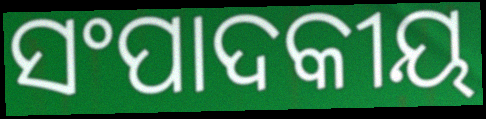
ସଂପାଦକୀୟ